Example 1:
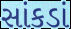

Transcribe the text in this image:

સાંકડાં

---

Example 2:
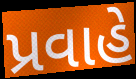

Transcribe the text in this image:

પ્રવાહે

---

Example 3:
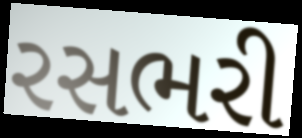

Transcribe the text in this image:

રસભરી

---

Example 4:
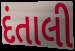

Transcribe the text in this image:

દંતાલી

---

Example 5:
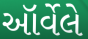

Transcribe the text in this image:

ઑર્વેલે